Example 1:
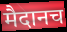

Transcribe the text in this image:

मैदानच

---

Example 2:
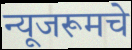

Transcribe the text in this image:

न्यूजरूमचे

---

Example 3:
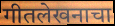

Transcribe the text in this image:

गीतलेखनाचा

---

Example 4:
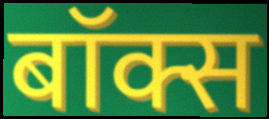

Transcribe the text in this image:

बॉक्स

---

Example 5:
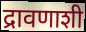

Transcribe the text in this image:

द्रावणाशी